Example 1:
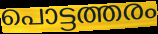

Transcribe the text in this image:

പൊട്ടത്തരം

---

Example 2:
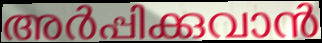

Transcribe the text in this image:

അർപ്പിക്കുവാൻ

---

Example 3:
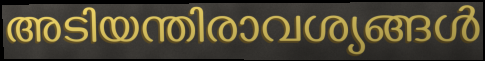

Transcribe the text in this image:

അടിയന്തിരാവശ്യങ്ങൾ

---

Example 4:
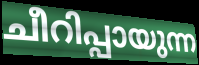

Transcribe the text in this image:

ചീറിപ്പായുന്ന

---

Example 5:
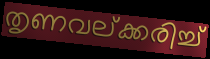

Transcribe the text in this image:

തൃണവല്ക്കരിച്ച്